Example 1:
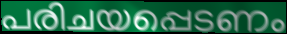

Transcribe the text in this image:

പരിചയപ്പെടണം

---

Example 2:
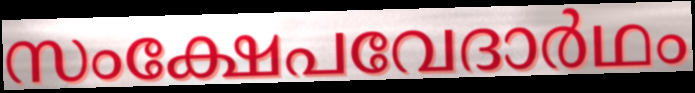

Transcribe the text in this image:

സംക്ഷേപവേദാർഥം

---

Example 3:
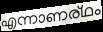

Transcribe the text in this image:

എന്നാണര്ഥം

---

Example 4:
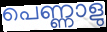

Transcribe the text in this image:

പെണ്ണാളു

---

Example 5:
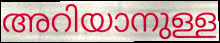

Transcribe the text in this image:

അറിയാനുള്ള